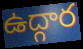
ఉద్గార